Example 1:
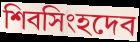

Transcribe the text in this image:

শিবসিংহদেব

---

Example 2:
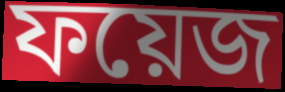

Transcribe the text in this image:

ফয়েজ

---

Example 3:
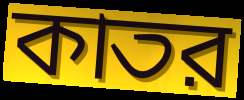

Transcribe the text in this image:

কাতর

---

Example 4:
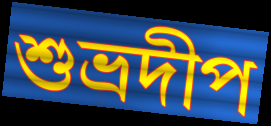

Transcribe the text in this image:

শুভ্রদীপ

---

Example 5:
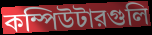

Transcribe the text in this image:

কম্পিউটারগুলি